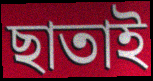
ছাতাই